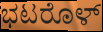
ಭಟರೊಳ್